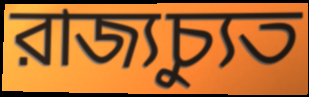
রাজ্যচ্যুত